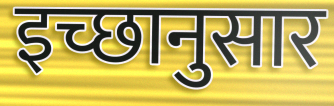
इच्‍छानुसार